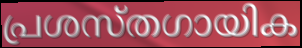
പ്രശസ്തഗായിക